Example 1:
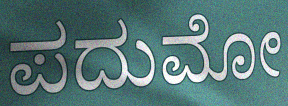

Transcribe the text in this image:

ಪದುಮೋ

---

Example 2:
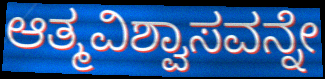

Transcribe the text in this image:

ಆತ್ಮವಿಶ್ವಾಸವನ್ನೇ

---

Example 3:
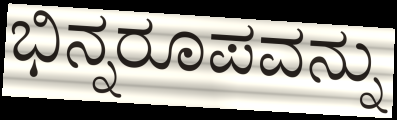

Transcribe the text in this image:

ಭಿನ್ನರೂಪವನ್ನು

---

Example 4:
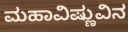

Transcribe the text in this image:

ಮಹಾವಿಷ್ಣುವಿನ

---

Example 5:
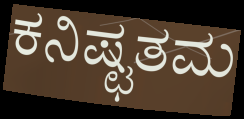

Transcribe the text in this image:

ಕನಿಷ್ಟತಮ